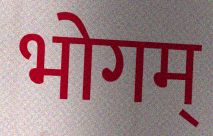
भोगम्